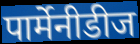
पार्मेनीडीज